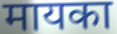
मायका